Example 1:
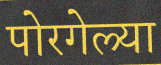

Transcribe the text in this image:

पोरगेल्या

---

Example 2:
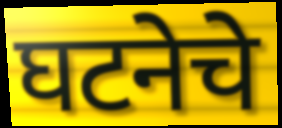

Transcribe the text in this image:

घटनेचे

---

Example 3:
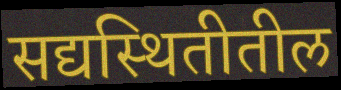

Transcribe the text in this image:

सद्यस्थितीतील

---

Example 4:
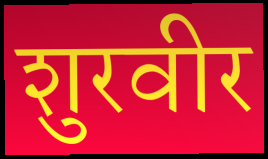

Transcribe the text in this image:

शुरवीर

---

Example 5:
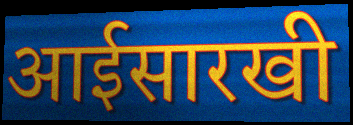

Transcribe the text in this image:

आईसारखी